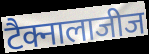
टैक्नालाजीज